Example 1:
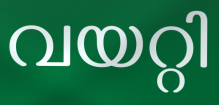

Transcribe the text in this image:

വയറ്റി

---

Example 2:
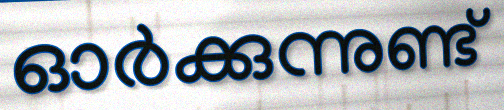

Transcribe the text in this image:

ഓർക്കുന്നുണ്ട്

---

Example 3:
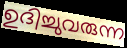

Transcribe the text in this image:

ഉദിച്ചുവരുന്ന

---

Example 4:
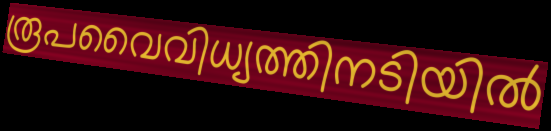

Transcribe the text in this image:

രൂപവൈവിധ്യത്തിനടിയിൽ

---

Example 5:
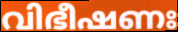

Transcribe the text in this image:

വിഭീഷണഃ